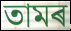
তামৰ